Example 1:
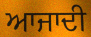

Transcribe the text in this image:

ਆਜਾਦੀ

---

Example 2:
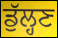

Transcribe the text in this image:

ਡੁੱਲ੍ਹਣ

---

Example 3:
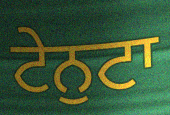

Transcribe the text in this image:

ਟੇਨੁਟਾ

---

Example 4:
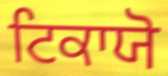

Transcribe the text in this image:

ਟਿਕਾਯੋ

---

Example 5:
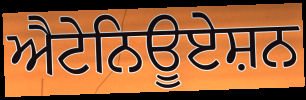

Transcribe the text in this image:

ਐਟੇਨਿਊਏਸ਼ਨ